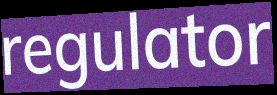
regulator